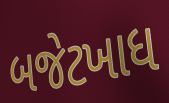
બજેટખાધ